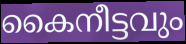
കൈനീട്ടവും